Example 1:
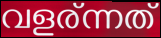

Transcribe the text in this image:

വളര്ന്നത്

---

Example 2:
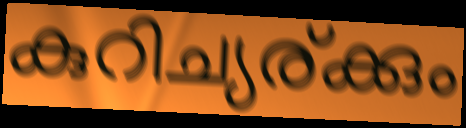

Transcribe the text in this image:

കുറിച്യര്ക്കും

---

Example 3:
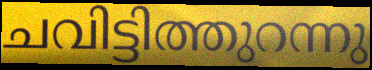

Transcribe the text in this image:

ചവിട്ടിത്തുറന്നു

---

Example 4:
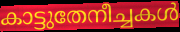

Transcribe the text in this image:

കാട്ടുതേനീച്ചകൾ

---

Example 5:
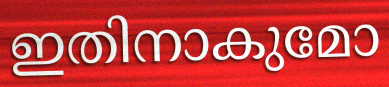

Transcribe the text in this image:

ഇതിനാകുമോ